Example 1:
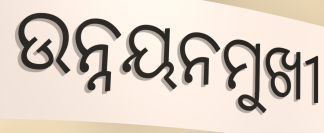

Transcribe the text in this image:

ଉନ୍ନୟନମୁଖୀ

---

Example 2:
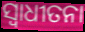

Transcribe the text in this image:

ସ୍ବାଧୀତନା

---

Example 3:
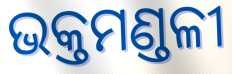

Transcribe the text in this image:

ଭକ୍ତମଣ୍ଡଳୀ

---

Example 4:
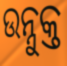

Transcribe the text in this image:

ଉନ୍ନୁକ୍ତ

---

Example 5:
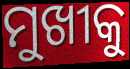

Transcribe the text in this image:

ମୁଖୀକୁ